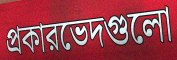
প্রকারভেদগুলো